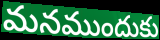
మనముందుకు